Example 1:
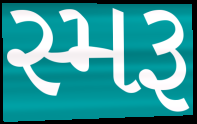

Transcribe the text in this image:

સ્મરૂ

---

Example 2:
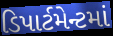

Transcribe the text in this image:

ડિપાર્ટમેન્ટમાં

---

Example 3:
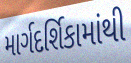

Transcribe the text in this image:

માર્ગદર્શિકામાંથી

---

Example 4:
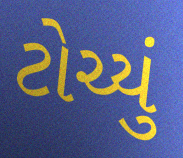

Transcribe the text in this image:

ટોચ્યું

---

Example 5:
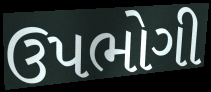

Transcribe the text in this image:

ઉપભોગી